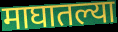
माघातल्या